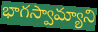
భాగస్వామ్యాని